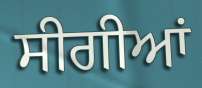
ਸੀਗੀਆਂ